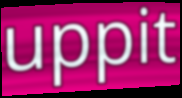
uppit